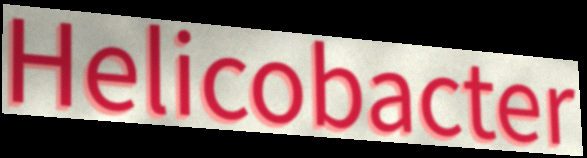
Helicobacter